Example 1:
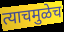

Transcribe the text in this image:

त्याचमुळेच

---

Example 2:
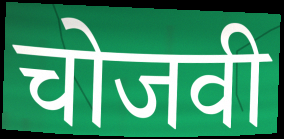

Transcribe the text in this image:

चोजवी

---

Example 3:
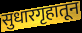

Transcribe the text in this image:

सुधारगृहातून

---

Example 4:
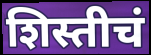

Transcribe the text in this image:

शिस्तीचं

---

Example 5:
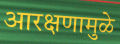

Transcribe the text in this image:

आरक्षणामुळे